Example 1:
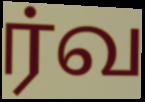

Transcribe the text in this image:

ர்வ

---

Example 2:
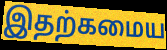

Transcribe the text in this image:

இதற்கமைய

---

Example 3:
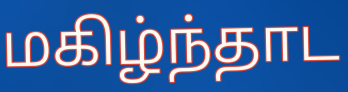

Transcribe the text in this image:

மகிழ்ந்தாட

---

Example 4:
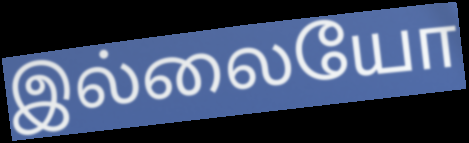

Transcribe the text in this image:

இல்லையோ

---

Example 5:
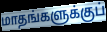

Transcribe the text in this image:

மாதங்களுக்குப்